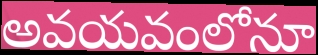
అవయవంలోనూ